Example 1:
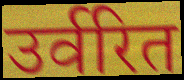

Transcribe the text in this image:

उर्वरित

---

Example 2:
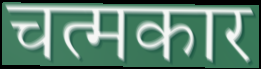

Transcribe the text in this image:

चत्मकार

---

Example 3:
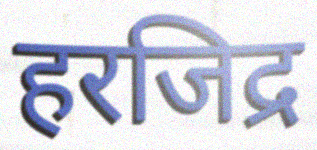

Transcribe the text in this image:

हरजिद्र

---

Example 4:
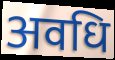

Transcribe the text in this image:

अवधि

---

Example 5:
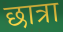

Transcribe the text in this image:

छात्रा